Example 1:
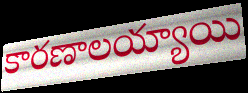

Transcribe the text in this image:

కారణాలయ్యాయి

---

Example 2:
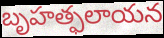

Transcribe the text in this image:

బృహత్ఫలాయన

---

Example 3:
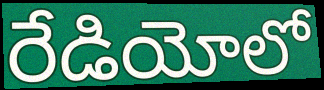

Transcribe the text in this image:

రేడియోలో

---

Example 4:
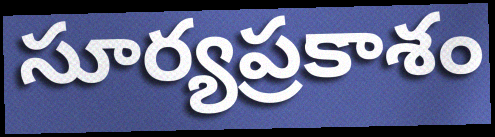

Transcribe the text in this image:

సూర్యప్రకాశం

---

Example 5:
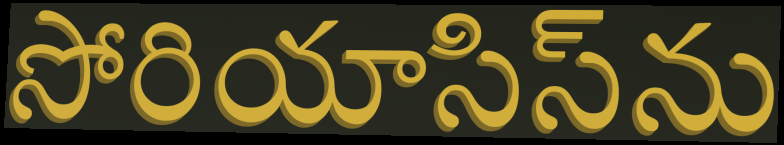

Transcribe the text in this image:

సోరియాసిస్‌ను